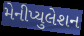
મેનીપ્યુલેશન